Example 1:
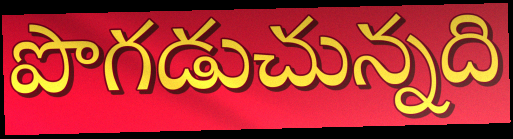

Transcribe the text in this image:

పొగడుచున్నది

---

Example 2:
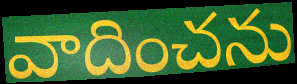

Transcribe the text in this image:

వాదించను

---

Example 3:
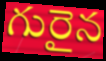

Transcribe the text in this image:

గురైన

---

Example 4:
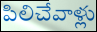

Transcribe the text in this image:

పిలిచేవాళ్లు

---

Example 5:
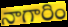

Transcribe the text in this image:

నాగారిం